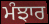
ਮੰਝਾਰ